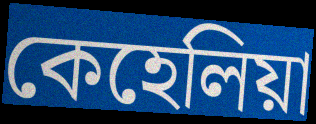
কেহেলিয়া